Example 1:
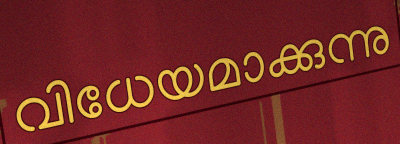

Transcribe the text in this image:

വിധേയമാക്കുന്നു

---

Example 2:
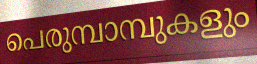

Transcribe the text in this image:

പെരുമ്പാമ്പുകളും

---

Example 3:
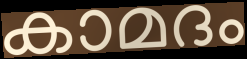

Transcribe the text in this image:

കാമദം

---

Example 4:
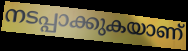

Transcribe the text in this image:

നടപ്പാക്കുകയാണ്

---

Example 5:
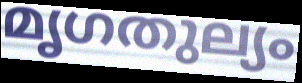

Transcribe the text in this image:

മൃഗതുല്യം